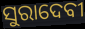
ସୁରାଦେବୀ